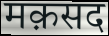
मक़सद